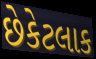
છેકેટલાક